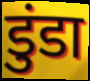
डुंडा